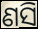
ଣସି